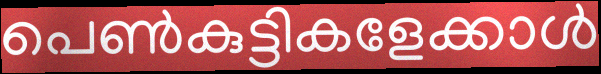
പെൺകുട്ടികളേക്കാൾ